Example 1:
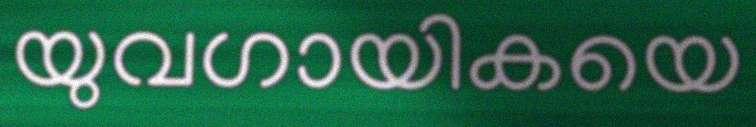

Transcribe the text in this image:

യുവഗായികയെ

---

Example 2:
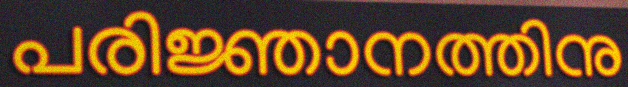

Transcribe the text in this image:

പരിജ്ഞാനത്തിനു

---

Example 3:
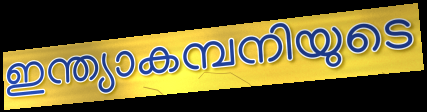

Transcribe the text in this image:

ഇന്ത്യാകമ്പനിയുടെ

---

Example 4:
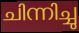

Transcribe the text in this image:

ചിന്നിച്ചു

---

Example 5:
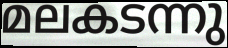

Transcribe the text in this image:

മലകടന്നു